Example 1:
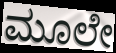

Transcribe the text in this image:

ಮೂಲೇ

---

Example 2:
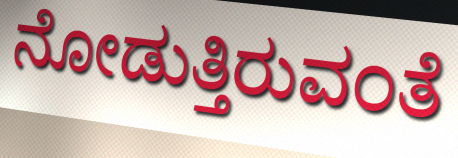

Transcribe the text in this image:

ನೋಡುತ್ತಿರುವಂತೆ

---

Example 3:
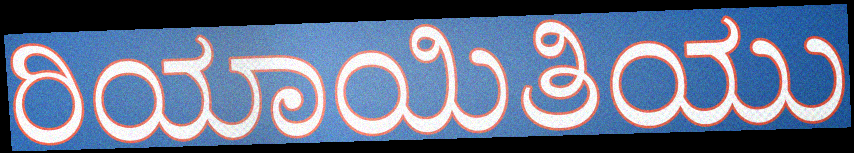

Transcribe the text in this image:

ರಿಯಾಯಿತಿಯು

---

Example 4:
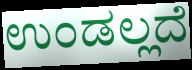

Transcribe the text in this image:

ಉಂಡಲ್ಲದೆ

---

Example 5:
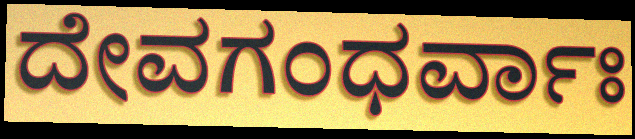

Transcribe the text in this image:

ದೇವಗಂಧರ್ವಾಃ